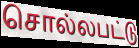
சொல்லபட்டு